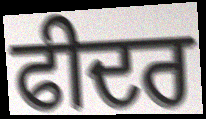
ਫੀਦਰ